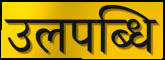
उलपब्धि